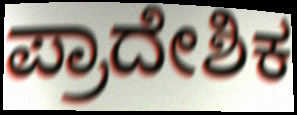
ಪ್ರಾದೇಶಿಕ